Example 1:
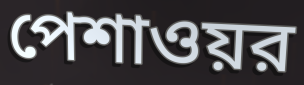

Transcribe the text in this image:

পেশাওয়র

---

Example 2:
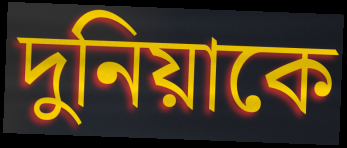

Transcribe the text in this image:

দুনিয়াকে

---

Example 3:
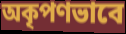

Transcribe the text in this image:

অকৃপণভাবে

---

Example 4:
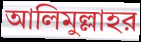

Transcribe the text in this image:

আলিমুল্লাহর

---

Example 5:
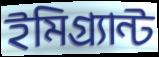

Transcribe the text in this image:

ইমিগ্র্যান্ট